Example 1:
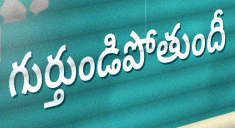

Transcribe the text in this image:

గుర్తుండిపోతుందీ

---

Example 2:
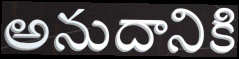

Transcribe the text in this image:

అనుదానికి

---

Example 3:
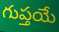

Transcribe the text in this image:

గుప్తయే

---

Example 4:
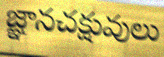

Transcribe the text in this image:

జ్ఞానచక్షువులు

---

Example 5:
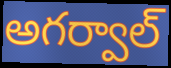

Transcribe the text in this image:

అగర్వాల్